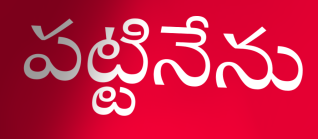
పట్టినేను